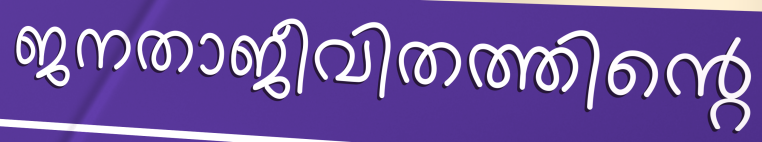
ജനതാജീവിതത്തിന്റെ